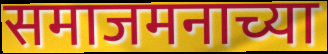
समाजमनाच्या